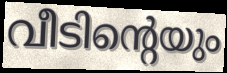
വീടിന്റെയും